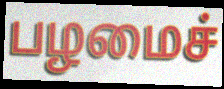
பழமைச்